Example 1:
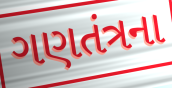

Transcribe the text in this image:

ગણતંત્રના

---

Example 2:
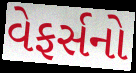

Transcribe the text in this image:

વેફર્સનો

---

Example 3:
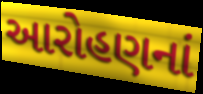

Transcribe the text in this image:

આરોહણનાં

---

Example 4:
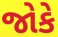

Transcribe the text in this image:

જોકે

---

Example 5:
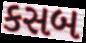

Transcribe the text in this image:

કસબ